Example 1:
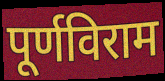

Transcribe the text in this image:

पूर्णविराम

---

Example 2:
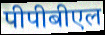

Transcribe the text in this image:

पीपीबीएल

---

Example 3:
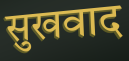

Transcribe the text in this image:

सुखवाद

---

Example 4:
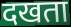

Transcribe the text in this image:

दखता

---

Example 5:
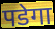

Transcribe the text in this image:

पडेगा